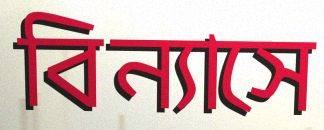
বিন্যাসে